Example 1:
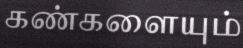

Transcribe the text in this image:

கண்களையும்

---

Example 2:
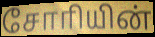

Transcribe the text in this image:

சோரியின்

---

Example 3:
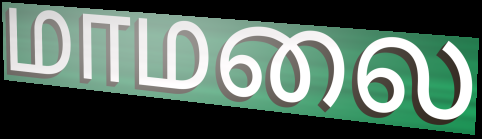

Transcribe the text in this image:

மாமலை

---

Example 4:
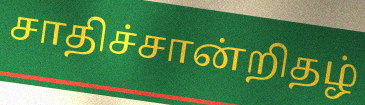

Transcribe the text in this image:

சாதிச்சான்றிதழ்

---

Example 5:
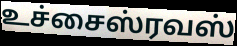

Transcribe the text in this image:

உச்சைஸ்ரவஸ்